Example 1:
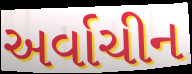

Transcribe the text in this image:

અર્વાચીન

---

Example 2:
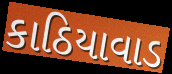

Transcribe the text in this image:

કાઠિયાવાડ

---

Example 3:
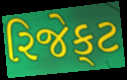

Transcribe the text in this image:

રિજેક્‌ટ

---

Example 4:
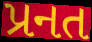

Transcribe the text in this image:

પ્રનત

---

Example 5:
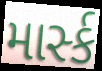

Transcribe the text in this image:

માર્સ્ક